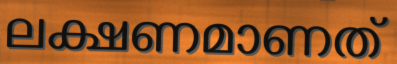
ലക്ഷണമാണത്